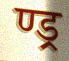
ण्ड्र